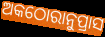
ଅକଠୋରାନୁପ୍ରାସ